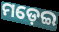
ମଡ଼େଇ